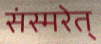
संस्मरेत्